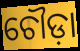
ଚୌଡ଼ା